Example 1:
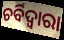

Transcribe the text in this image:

ଚର୍ବିଦ୍ଵାରା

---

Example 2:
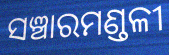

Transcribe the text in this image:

ସଞ୍ଚାରମଣ୍ଡଳୀ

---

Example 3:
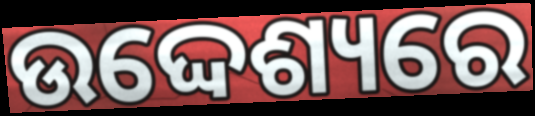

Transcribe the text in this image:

ଉଦ୍ଦେଶ୍ୟରେ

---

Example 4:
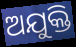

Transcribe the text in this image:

ଅଯୁକ୍ତି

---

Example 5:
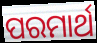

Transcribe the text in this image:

ପରମାର୍ଥ